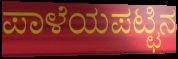
ಪಾಳೆಯಪಟ್ಟಿನ